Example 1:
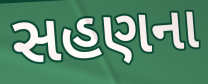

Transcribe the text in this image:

સહણના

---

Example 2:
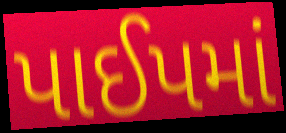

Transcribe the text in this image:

પાઈપમાં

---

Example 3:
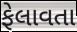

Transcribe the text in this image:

ફેલાવતા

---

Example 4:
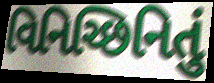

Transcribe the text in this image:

વિનિચ્છિનિતું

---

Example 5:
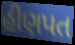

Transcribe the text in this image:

હીણપત